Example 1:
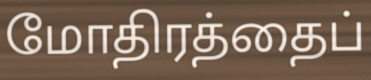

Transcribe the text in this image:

மோதிரத்தைப்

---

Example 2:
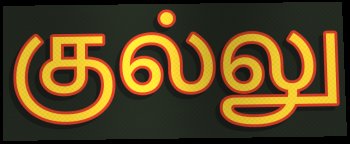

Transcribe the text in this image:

குல்லு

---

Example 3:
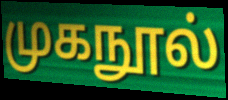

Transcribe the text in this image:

முகநூல்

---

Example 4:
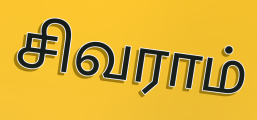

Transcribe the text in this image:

சிவராம்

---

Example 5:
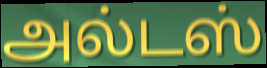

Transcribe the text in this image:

அல்டஸ்